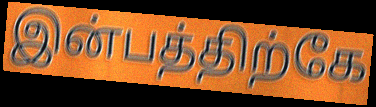
இன்பத்திற்கே